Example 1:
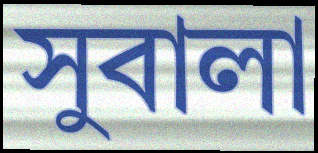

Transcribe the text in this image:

সুবালা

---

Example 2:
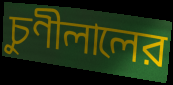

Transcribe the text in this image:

চুণীলালের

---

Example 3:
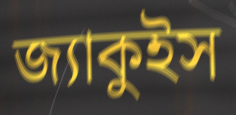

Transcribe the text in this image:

জ্যাকুইস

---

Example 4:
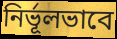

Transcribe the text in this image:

নির্ভূলভাবে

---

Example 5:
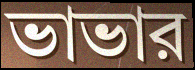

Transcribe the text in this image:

ভাভার